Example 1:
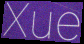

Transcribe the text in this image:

Xue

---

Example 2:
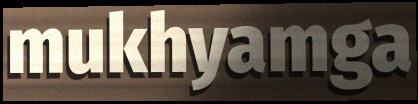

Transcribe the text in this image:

mukhyamga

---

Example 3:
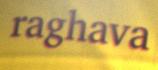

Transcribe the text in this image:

raghava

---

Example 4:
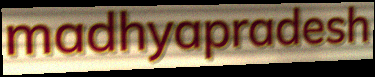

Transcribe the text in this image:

madhyapradesh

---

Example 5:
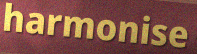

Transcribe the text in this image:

harmonise